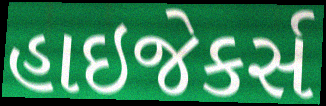
હાઇજેકર્સ